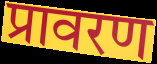
प्रावरण